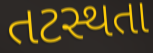
તટસ્થતા